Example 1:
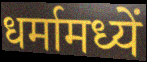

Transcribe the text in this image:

धर्मामध्यें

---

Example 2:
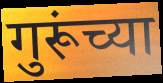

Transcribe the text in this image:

गुरूंच्या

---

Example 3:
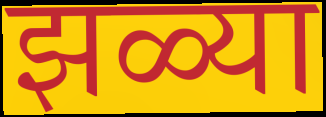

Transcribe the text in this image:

झळ्या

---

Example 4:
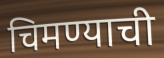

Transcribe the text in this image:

चिमण्याची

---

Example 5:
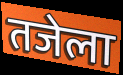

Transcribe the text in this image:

तजेला